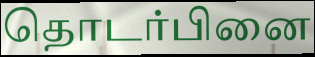
தொடர்பினை